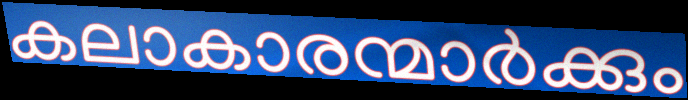
കലാകാരന്മാർക്കും